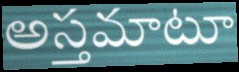
అస్తమాటూ